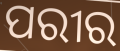
ପରୀର